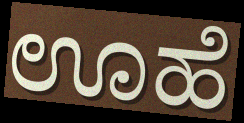
ಊಹೆ